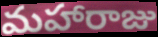
మహారాజు